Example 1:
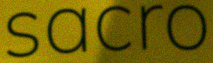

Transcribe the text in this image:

sacro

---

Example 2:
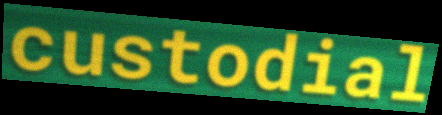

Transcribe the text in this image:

custodial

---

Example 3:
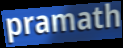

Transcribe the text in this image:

pramath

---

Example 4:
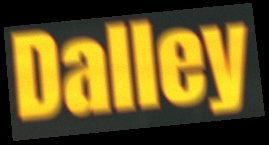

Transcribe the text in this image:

Dalley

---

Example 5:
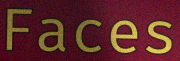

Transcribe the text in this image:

Faces